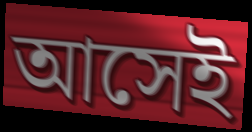
আসেই